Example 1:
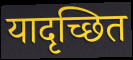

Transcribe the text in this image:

यादृच्छित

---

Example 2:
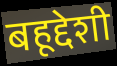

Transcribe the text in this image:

बहूद्देशी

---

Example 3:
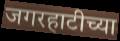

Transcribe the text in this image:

जगरहाटीच्या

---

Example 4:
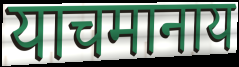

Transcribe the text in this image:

याचमानाय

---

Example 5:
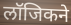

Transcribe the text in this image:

लॉजिकने